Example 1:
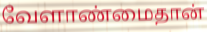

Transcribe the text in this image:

வேளாண்மைதான்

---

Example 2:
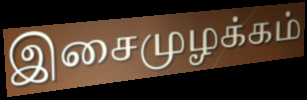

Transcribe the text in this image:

இசைமுழக்கம்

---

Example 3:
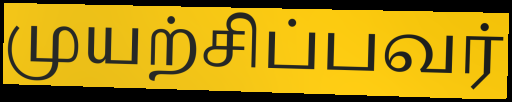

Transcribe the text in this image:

முயற்சிப்பவர்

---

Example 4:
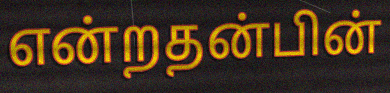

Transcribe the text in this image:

என்றதன்பின்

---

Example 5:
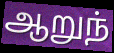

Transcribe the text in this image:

ஆறுந்